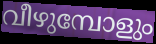
വീഴുമ്പോളും